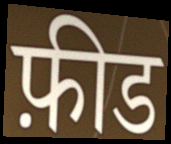
फ़ीड